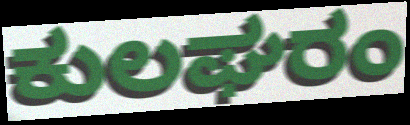
ಕುಲಘರಂ